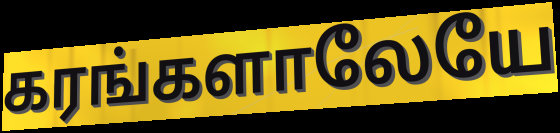
கரங்களாலேயே